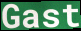
Gast